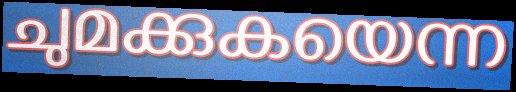
ചുമക്കുകയെന്ന